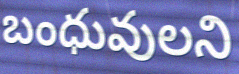
బంధువులని